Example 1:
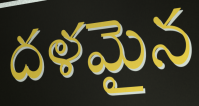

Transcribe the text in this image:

దళమైన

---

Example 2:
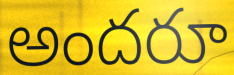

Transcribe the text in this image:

అందరూ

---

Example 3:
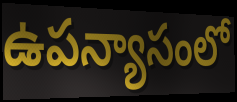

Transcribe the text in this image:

ఉపన్యాసంలో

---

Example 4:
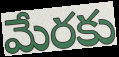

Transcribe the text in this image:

మేరకు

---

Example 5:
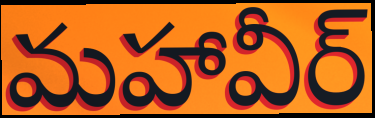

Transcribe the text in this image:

మహావీర్